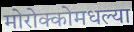
मोरोक्कोमधल्या